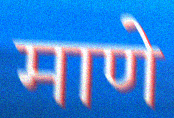
माणे